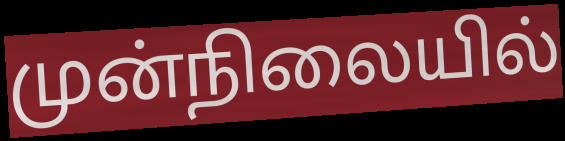
முன்நிலையில்